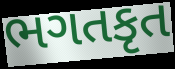
ભગતકૃત